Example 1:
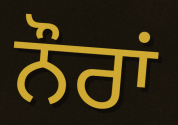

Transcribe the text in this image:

ਨੌਰਾਂ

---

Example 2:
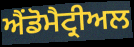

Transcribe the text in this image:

ਐਂਡੋਮੈਟ੍ਰੀਅਲ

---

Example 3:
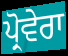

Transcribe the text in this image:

ਪ੍ਰੋਵੇਰਾ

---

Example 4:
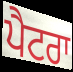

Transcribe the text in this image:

ਪੈਟਰਾ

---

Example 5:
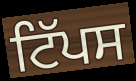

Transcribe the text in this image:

ਟਿੱਪਸ